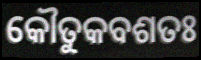
କୌତୁକବଶତଃ